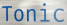
Tonic